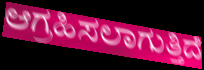
ಆಗ್ರಹಿಸಲಾಗುತ್ತಿದೆ